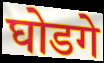
घोडगे